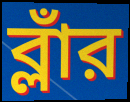
ব্লাঁর